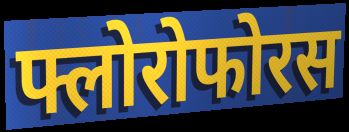
फ्लोरोफोरस